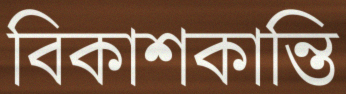
বিকাশকান্তি